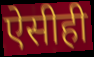
ऐसीही